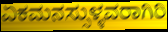
ಏಕಮನಸ್ಸುಳ್ಳವರಾಗಿರಿ